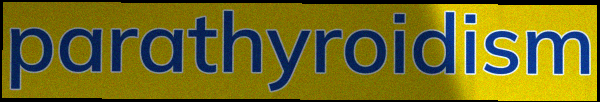
parathyroidism